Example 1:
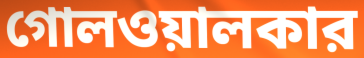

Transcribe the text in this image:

গোলওয়ালকার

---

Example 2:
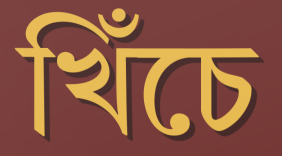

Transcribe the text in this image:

খিঁচে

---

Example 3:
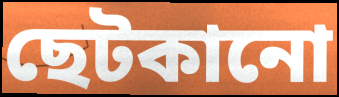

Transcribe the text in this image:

ছেটকানো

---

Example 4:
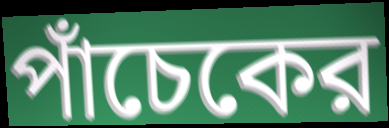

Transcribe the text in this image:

পাঁচেকের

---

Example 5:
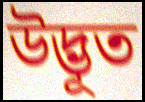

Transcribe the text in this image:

উদ্ভূত